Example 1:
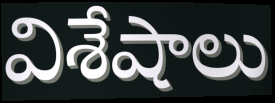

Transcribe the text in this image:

విశేషాలు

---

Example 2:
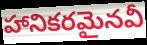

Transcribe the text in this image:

హానికరమైనవీ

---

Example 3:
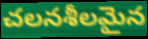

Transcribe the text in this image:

చలనశీలమైన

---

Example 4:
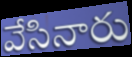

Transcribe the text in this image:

వేసినారు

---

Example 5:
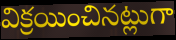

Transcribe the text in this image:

విక్రయించినట్లుగా